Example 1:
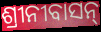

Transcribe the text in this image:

ଶ୍ରୀନୀବାସନ୍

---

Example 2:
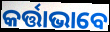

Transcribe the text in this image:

କର୍ତ୍ତାଭାବେ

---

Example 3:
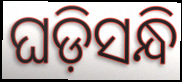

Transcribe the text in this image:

ଘଡ଼ିସନ୍ଧି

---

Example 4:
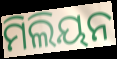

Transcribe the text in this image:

ମିଲିୟନ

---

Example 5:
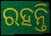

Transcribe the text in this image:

ରହନ୍ତି